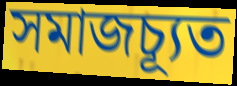
সমাজচ্যূত